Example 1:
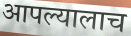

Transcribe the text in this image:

आपल्यालाच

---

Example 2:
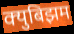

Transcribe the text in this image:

क्युबिझम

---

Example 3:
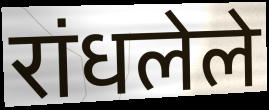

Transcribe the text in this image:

रांधलेले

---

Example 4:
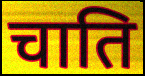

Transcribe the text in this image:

चाति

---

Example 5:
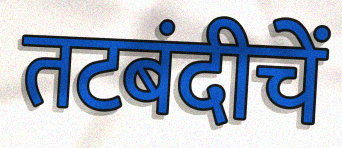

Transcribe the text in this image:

तटबंदीचें